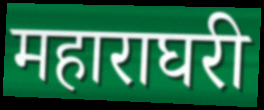
महाराघरी